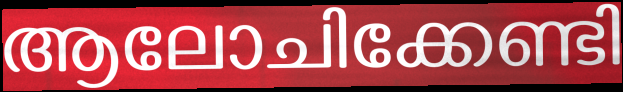
ആലോചിക്കേണ്ടി